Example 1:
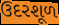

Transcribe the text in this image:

ઉદરશૂળ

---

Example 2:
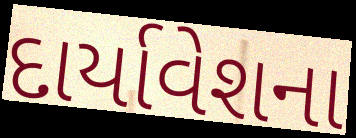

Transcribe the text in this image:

દાર્યાવેશના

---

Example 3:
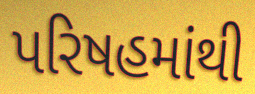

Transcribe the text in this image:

પરિષહમાંથી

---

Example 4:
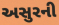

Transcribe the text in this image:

અસુરની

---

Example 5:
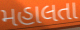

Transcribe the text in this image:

મહાલતા